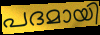
പദമായി